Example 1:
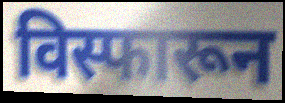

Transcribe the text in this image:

विस्फारून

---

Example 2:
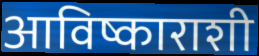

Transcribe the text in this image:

आविष्काराशी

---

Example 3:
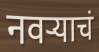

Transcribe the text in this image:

नवर्‍याचं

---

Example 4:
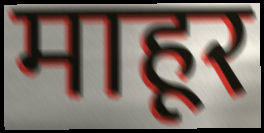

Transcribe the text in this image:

माहूर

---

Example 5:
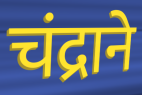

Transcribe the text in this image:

चंद्राने